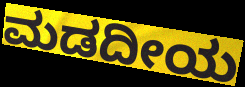
ಮಡದೀಯ